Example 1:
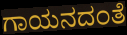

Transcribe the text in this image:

ಗಾಯನದಂತೆ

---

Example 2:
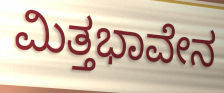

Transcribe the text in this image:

ಮಿತ್ತಭಾವೇನ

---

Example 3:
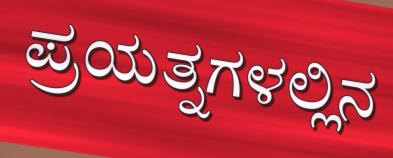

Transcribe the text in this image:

ಪ್ರಯತ್ನಗಳಲ್ಲಿನ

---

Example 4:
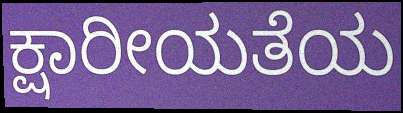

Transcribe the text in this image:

ಕ್ಷಾರೀಯತೆಯ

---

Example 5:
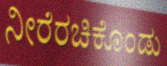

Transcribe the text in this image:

ನೀರೆರಚಿಕೊಂಡು